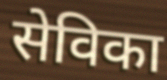
सेविका